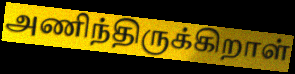
அணிந்திருக்கிறாள்